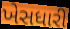
ખેસધારી